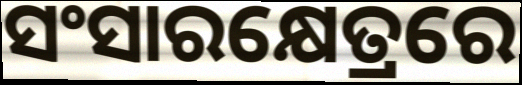
ସଂସାରକ୍ଷେତ୍ରରେ